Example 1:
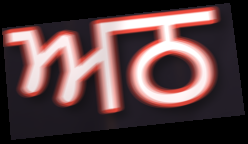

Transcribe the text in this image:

ਅਠ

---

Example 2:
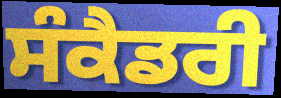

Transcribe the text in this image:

ਸੰਕੈਡਰੀ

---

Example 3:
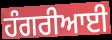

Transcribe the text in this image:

ਹੰਗਰੀਆਈ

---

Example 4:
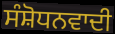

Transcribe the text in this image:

ਸੰਸ਼ੋਧਨਵਾਦੀ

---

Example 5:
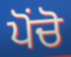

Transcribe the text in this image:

ਪੋਂਚੋ